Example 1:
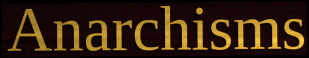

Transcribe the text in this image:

Anarchisms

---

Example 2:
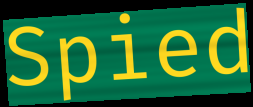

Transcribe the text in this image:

Spied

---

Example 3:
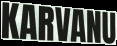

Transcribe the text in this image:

KARVANU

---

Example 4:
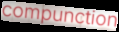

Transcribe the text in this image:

compunction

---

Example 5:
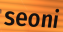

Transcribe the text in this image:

seoni